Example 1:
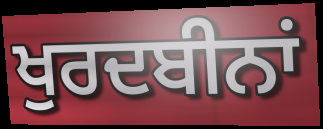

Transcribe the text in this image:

ਖੁਰਦਬੀਨਾਂ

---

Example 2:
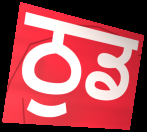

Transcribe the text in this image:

ਠੁਡ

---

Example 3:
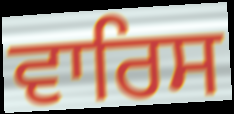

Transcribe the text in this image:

ਵਾਰਿਸ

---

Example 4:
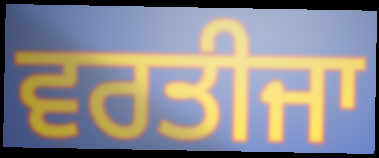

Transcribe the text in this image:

ਵਰਤੀਜਾ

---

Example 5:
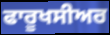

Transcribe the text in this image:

ਫਾਰੂਖਸੀਅਰ